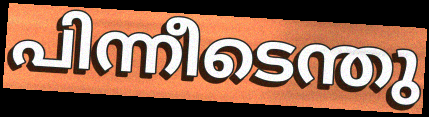
പിന്നീടെന്തു